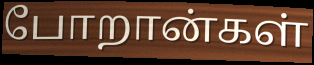
போறான்கள்